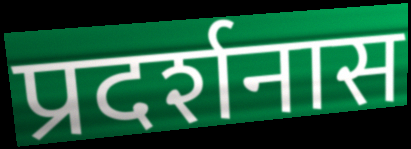
प्रदर्शनास